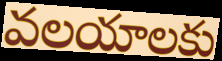
వలయాలకు